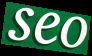
seo